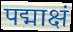
पद्माक्षं